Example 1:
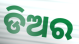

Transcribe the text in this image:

ଡିଅର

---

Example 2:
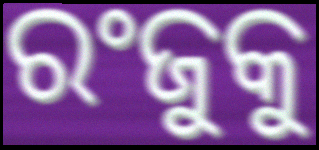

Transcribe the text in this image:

ରଂଜୁକୁ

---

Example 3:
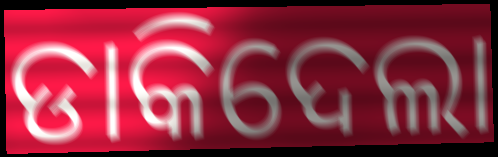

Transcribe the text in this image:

ଡାକିଦେଲା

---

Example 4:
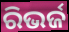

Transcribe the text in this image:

ରିଭର୍ଜ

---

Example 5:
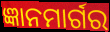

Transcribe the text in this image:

ଜ୍ଞାନମାର୍ଗର